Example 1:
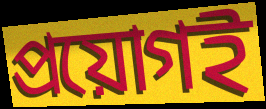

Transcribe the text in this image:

প্রয়োগই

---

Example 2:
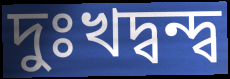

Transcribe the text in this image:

দুঃখদ্বন্দ্ব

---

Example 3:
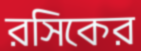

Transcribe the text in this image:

রসিকের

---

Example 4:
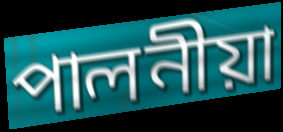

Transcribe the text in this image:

পালনীয়া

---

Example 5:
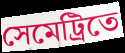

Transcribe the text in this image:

সেমেট্রিতে